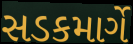
સડકમાર્ગે